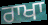
ਰਾਖਾ